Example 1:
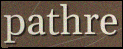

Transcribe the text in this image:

pathre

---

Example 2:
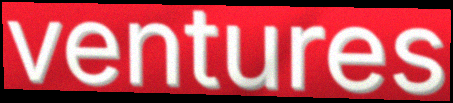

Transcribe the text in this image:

ventures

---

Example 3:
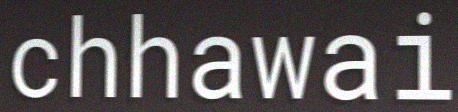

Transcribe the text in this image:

chhawai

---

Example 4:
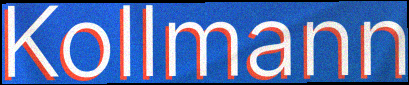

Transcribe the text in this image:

Kollmann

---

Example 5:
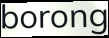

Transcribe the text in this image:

borong